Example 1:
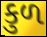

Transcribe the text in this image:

કુળ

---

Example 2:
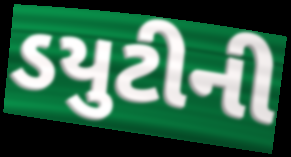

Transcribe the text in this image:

ડયુટીની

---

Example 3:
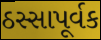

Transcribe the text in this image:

ઠસ્સાપૂર્વક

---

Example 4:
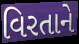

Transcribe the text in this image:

વિરતાને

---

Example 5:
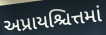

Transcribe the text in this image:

અપ્રાયશ્ચિત્તમાં